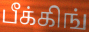
பீக்கிங்